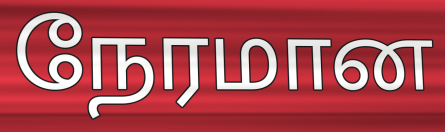
நேரமான